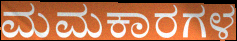
ಮಮಕಾರಗಳ